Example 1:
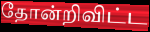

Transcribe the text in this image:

தோன்றிவிட்ட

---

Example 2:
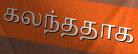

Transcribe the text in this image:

கலந்ததாக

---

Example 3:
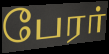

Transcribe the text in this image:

பேரர்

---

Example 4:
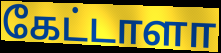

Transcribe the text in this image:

கேட்டாளா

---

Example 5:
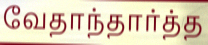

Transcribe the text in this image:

வேதாந்தார்த்த